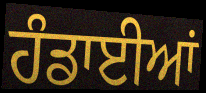
ਹੰਡਾਈਆਂ